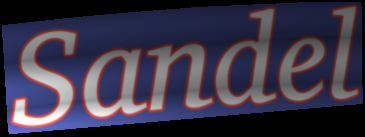
Sandel